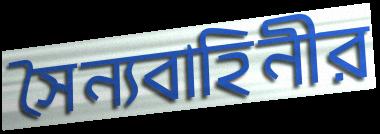
সৈন্যবাহিনীর